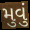
મુવું